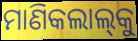
ମାଣିକଲାଲ୍‍କୁ